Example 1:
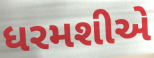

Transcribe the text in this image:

ધરમશીએ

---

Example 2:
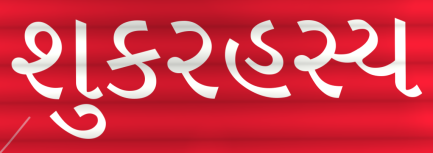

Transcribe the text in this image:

શુકરહસ્ય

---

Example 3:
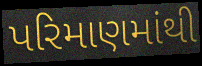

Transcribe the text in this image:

પરિમાણમાંથી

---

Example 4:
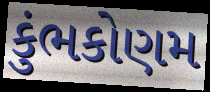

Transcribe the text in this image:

કુંભકોણમ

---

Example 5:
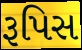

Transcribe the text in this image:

રૂપિસ